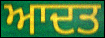
ਆਦਤ